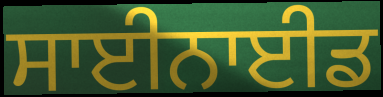
ਸਾਈਨਾਈਡ